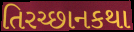
તિરચ્છાનકથા